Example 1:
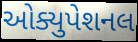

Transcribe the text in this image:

ઓક્યુપેશનલ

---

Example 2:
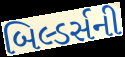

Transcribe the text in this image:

બિલ્ડર્સની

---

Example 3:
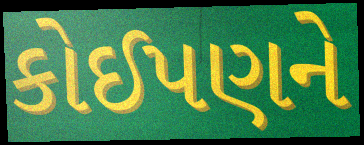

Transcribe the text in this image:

કોઈપણને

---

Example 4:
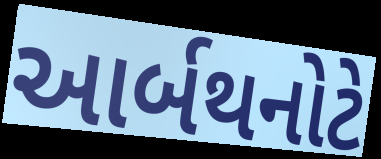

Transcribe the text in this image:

આર્બથનોટે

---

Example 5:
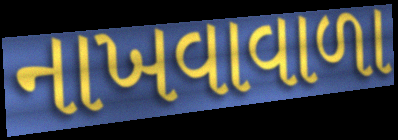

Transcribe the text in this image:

નાખવાવાળા